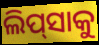
ଲିପ୍‍ସାକୁ